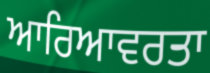
ਆਰਿਆਵਰਤਾ